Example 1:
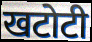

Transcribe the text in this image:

खटोटी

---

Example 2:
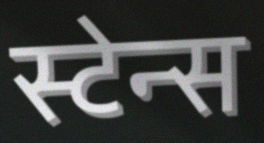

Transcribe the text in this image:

स्टेन्स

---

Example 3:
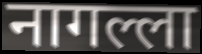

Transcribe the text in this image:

नागल्ला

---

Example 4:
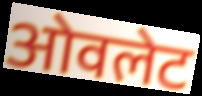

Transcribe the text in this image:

ओवलेट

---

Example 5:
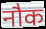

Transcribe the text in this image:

नौक